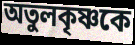
অতুলকৃষ্ণকে